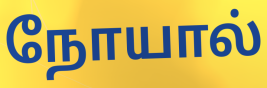
நோயால்